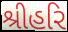
શ્રીહરિ